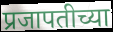
प्रजापतीच्या